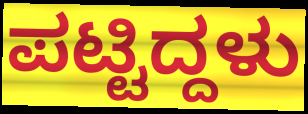
ಪಟ್ಟಿದ್ದಳು